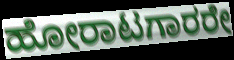
ಹೋರಾಟಗಾರರೇ